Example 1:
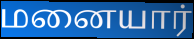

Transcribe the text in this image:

மனையார்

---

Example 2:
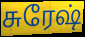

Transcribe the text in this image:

சுரேஷ்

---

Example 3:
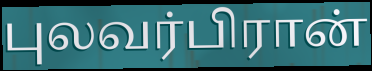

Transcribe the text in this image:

புலவர்பிரான்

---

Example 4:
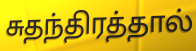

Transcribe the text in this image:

சுதந்திரத்தால்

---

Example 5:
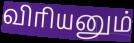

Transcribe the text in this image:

விரியனும்